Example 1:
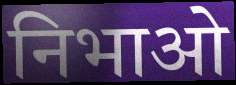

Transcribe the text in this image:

निभाओ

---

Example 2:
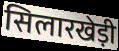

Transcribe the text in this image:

सिलारखेड़ी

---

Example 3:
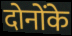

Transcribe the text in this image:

दोनोंके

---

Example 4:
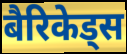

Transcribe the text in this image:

बैरिकेड्स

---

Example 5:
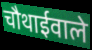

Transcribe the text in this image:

चौथाईवाले